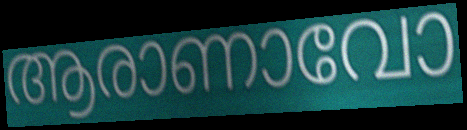
ആരാണാവോ